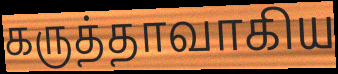
கருத்தாவாகிய